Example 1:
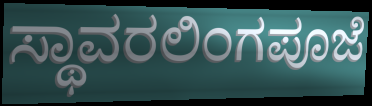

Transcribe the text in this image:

ಸ್ಥಾವರಲಿಂಗಪೂಜೆ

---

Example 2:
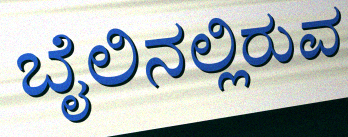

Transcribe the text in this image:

ಬೈಲಿನಲ್ಲಿರುವ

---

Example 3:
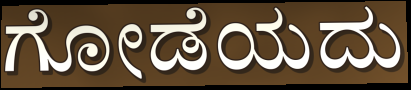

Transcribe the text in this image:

ಗೋಡೆಯದು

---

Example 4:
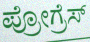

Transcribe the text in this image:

ಪ್ರೋಗ್ರೆಸ್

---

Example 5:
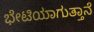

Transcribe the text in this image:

ಭೇಟಿಯಾಗುತ್ತಾನೆ